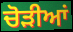
ਚੋੜੀਆਂ